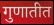
गुणातीत